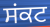
ਸਂਕਟ